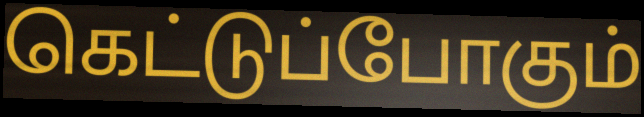
கெட்டுப்போகும்